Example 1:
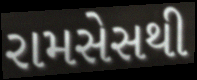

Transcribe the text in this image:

રામસેસથી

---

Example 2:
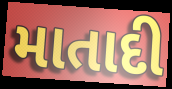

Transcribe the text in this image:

માતાદી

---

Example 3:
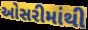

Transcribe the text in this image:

ઓસરીમાંથી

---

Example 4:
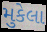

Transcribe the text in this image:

મુકેલા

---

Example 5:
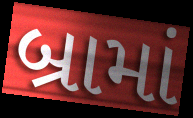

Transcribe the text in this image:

બ્રામાં